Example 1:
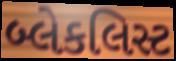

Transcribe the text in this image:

બ્લેકલિસ્ટ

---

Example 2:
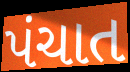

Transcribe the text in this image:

પંચાત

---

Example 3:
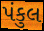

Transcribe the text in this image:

પંકુલ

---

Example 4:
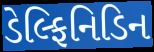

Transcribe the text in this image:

ડેલ્ફિનિડિન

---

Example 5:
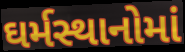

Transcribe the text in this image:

ઘર્મસ્થાનોમાં